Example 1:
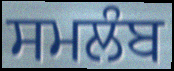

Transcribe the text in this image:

ਸਮਲੰਬ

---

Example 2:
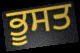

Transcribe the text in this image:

ਭੂਸਤ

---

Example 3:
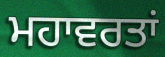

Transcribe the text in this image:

ਮਹਾਵਰਤਾਂ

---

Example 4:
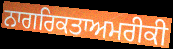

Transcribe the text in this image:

ਨਾਗਰਿਕਤਾਅਮਰੀਕੀ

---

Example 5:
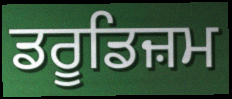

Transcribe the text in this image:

ਡਰੂਡਿਜ਼ਮ